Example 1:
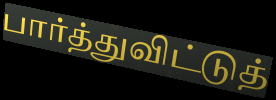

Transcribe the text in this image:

பார்த்துவிட்டுத்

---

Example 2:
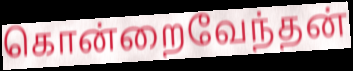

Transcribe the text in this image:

கொன்றைவேந்தன்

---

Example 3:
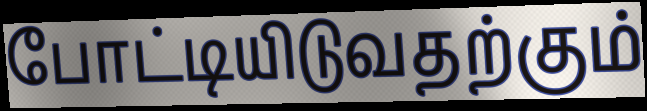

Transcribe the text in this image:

போட்டியிடுவதற்கும்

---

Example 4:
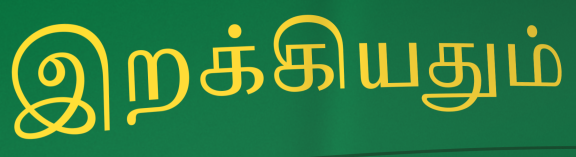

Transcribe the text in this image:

இறக்கியதும்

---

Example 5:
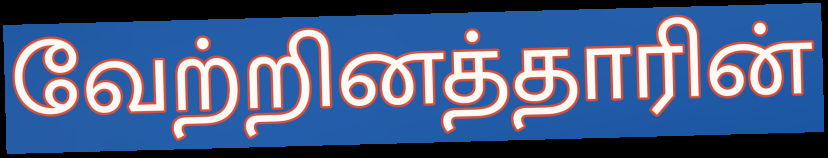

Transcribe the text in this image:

வேற்றினத்தாரின்